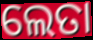
ଲେତା